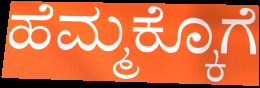
ಹೆಮ್ಮಕ್ಕೊಗೆ